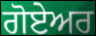
ਗੋਏਅਰ